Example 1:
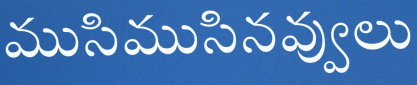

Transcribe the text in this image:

ముసిముసినవ్వులు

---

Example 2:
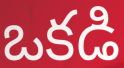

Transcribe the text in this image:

ఒకడి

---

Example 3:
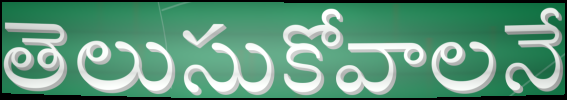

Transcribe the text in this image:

తెలుసుకోవాలనే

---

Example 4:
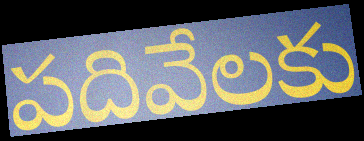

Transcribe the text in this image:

పదివేలకు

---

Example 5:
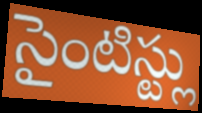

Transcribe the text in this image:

సైంటిస్ట్లు